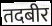
तदबीर